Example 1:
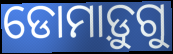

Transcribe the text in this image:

ଡୋମାଡ଼ୁଗୁ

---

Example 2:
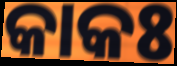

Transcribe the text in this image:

କାକଃ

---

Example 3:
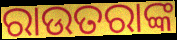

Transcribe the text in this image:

ରାଉତରାଙ୍କ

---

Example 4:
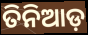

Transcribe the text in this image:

ତିନିଆଡ଼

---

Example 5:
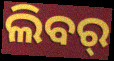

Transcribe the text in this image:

ଲିବର୍